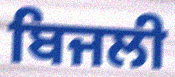
ਬਿਜਲੀ